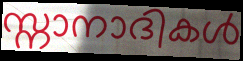
സ്നാനാദികൾ